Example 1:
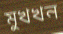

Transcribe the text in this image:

মুখখন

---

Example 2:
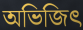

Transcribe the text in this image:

অভিজিৎ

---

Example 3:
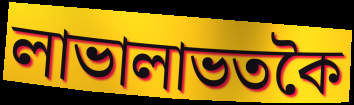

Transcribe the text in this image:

লাভালাভতকৈ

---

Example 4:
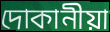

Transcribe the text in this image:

দোকানীয়া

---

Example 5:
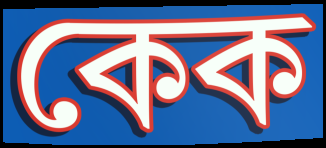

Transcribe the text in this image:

কেক